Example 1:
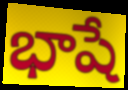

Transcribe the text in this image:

భాషే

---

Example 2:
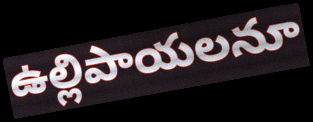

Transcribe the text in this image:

ఉల్లిపాయలనూ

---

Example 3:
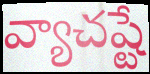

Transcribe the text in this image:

వ్యాచష్టే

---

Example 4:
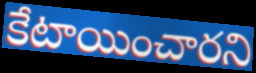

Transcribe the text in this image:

కేటాయించారని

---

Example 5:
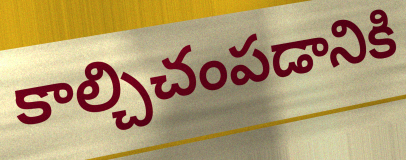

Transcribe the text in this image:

కాల్చిచంపడానికి